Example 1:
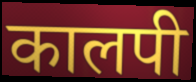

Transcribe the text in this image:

कालपी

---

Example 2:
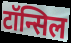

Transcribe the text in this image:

टॉन्सिल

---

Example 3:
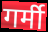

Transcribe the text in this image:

गर्मी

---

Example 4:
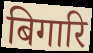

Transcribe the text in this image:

बिगारि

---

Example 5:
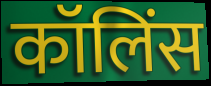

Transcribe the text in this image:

कॉलिंस